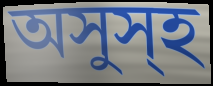
অসুস্হ